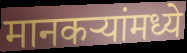
मानकऱ्यांमध्ये